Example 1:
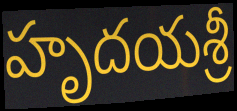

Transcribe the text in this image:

హృదయశ్రీ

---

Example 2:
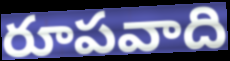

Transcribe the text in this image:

రూపవాది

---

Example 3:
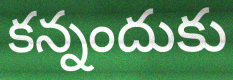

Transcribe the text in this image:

కన్నందుకు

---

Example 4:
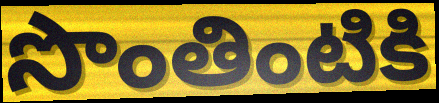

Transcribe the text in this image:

సొంతింటికి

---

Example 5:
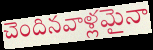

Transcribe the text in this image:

చెందినవాళ్లమైనా